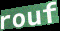
rouf